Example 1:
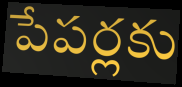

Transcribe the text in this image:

పేపర్లకు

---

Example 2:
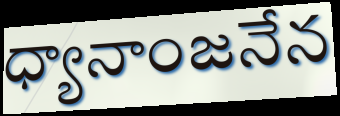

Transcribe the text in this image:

ధ్యానాంజనేన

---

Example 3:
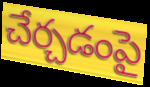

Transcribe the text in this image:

చేర్చడంపై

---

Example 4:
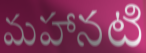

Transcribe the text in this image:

మహానటి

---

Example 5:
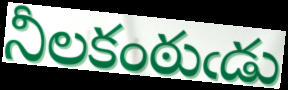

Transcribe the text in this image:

నీలకంఠుఁడు